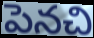
పెనచి